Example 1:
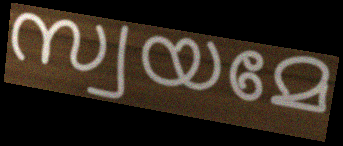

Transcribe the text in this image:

സ്വയമേ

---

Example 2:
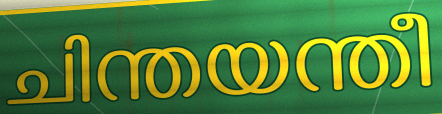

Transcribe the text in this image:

ചിന്തയന്തീ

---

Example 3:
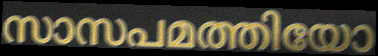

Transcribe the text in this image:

സാസപമത്തിയോ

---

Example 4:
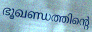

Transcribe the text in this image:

ഭൂഖണ്ഡത്തിന്റെ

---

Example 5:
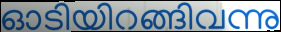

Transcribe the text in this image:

ഓടിയിറങ്ങിവന്നു